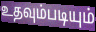
உதவும்படியும்